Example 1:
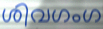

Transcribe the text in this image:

ശിവഗംഗ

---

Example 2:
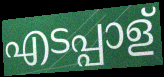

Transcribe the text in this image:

എടപ്പാള്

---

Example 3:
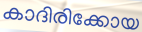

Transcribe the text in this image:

കാദിരിക്കോയ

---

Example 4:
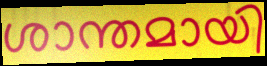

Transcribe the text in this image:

ശാന്തമായി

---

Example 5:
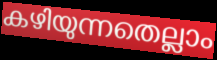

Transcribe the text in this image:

കഴിയുന്നതെല്ലാം